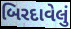
બિરદાવેલું